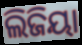
ଲିଜିୟା